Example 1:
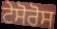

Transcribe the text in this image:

ਟੇਸੋਰੋਸ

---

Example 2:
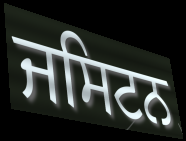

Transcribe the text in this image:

ਜਸਿਟਨ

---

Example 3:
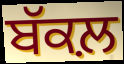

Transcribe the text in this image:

ਬੱਕਲ਼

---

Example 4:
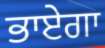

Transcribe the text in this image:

ਭਾਏਗਾ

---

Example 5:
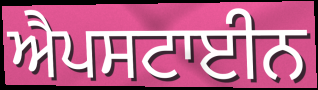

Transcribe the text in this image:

ਐਪਸਟਾਈਨ